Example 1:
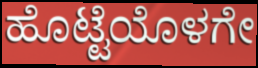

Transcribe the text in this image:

ಹೊಟ್ಟೆಯೊಳಗೇ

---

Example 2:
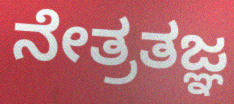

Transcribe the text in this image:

ನೇತ್ರತಜ್ಞ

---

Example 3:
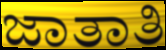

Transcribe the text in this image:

ಜಾತಾತಿ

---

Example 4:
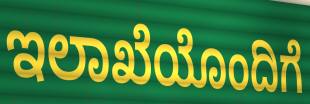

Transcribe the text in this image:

ಇಲಾಖೆಯೊಂದಿಗೆ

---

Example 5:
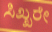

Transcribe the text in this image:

ಸಿಖ್ಖರೇ